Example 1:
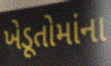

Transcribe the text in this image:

ખેડૂતોમાંના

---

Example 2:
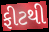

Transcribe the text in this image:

ફીટથી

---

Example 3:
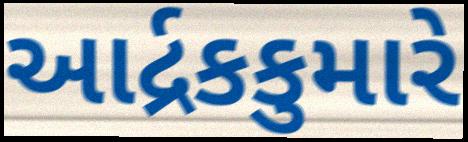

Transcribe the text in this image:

આર્દ્રકકુમારે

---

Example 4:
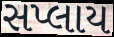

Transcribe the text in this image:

સપ્લાય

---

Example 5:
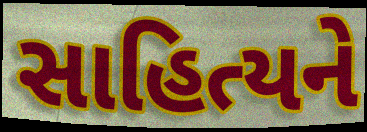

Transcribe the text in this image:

સાહિત્યને